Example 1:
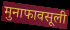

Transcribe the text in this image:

मुनाफावसूली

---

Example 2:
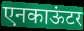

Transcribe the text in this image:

एनकाऊंटर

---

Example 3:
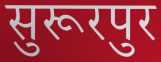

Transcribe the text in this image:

सुरूरपुर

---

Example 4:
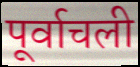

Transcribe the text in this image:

पूर्वाचली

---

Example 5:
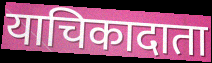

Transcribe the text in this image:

याचिकादाता